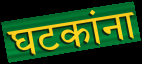
घटकांना